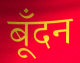
बूँदन